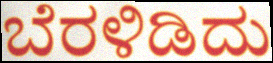
ಬೆರಳಿಡಿದು